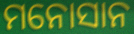
ମନୋସାନ